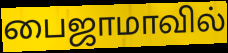
பைஜாமாவில்